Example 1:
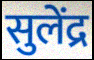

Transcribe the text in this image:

सुलेंद्र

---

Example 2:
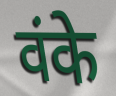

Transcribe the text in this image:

वंके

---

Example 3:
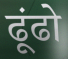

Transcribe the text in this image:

ढूंढो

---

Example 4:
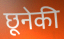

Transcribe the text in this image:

छूनेकी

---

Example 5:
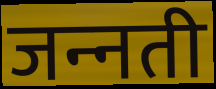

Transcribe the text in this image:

जन्नती